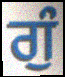
ਗੁੰ